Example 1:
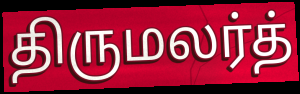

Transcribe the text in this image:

திருமலர்த்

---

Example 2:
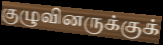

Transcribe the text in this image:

குழுவினருக்குக்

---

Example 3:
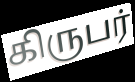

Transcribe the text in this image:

கிருபர்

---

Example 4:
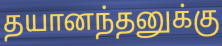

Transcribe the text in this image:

தயானந்தனுக்கு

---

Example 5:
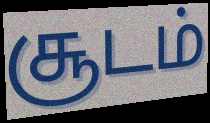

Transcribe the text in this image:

சூடம்